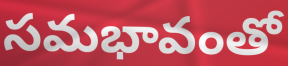
సమభావంతో